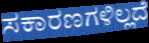
ಸಕಾರಣಗಳಿಲ್ಲದೆ